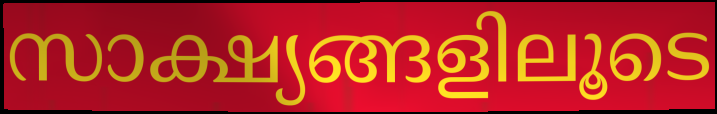
സാക്ഷ്യങ്ങളിലൂടെ